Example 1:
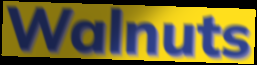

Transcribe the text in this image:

Walnuts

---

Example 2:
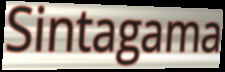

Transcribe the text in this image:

Sintagama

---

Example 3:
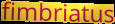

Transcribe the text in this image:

fimbriatus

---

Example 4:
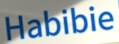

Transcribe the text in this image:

Habibie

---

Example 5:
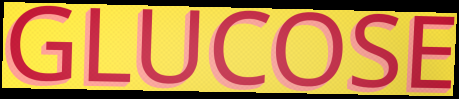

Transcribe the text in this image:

GLUCOSE